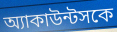
অ্যাকাউন্টসকে